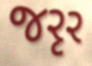
જરૃર